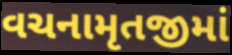
વચનામૃતજીમાં